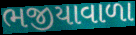
ભજીયાવાળા